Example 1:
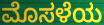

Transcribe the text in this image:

ಮೊಸಳೆಯ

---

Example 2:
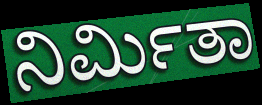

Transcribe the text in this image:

ನಿರ್ಮಿತಾ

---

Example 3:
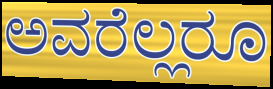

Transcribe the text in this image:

ಅವರೆಲ್ಲರೂ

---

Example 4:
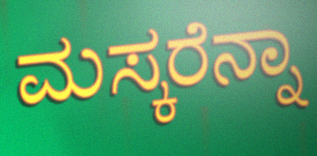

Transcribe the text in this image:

ಮಸ್ಕರೆನ್ನಾ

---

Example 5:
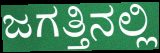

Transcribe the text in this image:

ಜಗತ್ತಿನಲ್ಲಿ